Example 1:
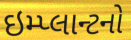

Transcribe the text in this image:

ઇમ્પ્લાન્ટનો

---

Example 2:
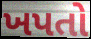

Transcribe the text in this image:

ખપતો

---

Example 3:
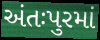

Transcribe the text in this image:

અંતઃપુરમાં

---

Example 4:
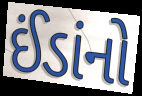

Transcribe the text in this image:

ઈંડાંનો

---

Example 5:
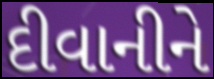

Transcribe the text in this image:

દીવાનીને